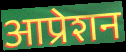
आप्रेशन